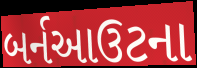
બર્નઆઉટના